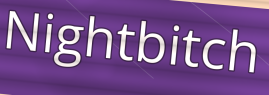
Nightbitch